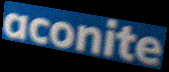
aconite